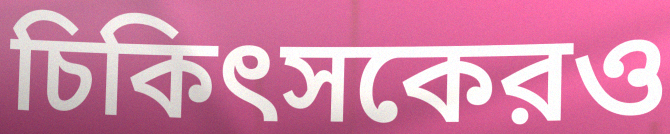
চিকিৎসকেরও